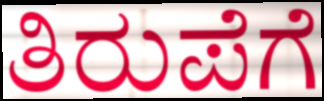
ತಿರುಪೆಗೆ